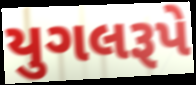
યુગલરૂપે